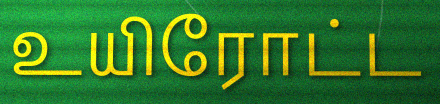
உயிரோட்ட